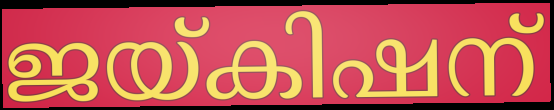
ജയ്കിഷന്